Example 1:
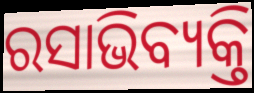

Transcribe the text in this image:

ରସାଭିବ୍ୟକ୍ତି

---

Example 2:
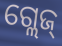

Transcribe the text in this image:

ଗ୍ଲେଜ୍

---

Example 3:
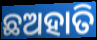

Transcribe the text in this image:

ଛଅହାତି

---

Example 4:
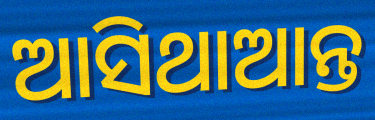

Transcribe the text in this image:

ଆସିଥାଆନ୍ତ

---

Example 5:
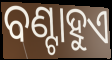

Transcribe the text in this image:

ବଣ୍ଟାହୁଏ